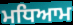
ਮਧਿਆਮ